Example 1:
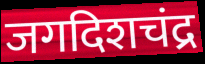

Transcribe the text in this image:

जगदिशचंद्र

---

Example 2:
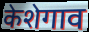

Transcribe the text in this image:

केशेगाव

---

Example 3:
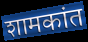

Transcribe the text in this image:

शामकांत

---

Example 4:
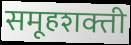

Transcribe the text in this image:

समूहशक्ती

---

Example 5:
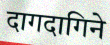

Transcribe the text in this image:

दागदागिने